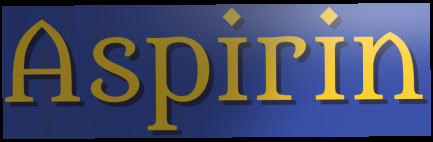
Aspirin